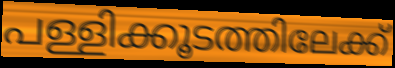
പള്ളിക്കൂടത്തിലേക്ക്